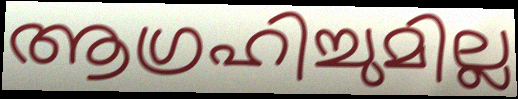
ആഗ്രഹിച്ചുമില്ല